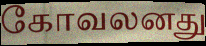
கோவலனது